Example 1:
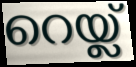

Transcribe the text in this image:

റെയ്ല്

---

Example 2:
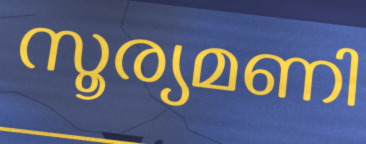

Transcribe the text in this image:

സൂര്യമണി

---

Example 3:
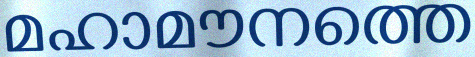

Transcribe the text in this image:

മഹാമൗനത്തെ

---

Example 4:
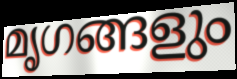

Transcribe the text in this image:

മൃഗങ്ങളും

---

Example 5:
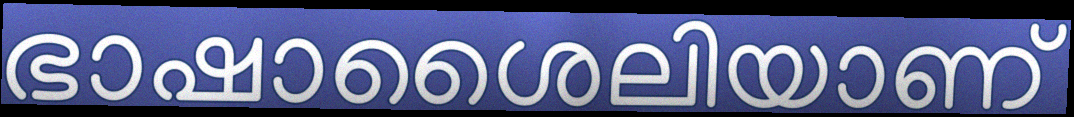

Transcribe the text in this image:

ഭാഷാശൈലിയാണ്